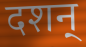
दशन्